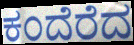
ಕಂದೆರೆದ